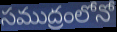
సముద్రంలోనో